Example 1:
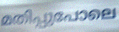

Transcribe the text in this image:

മതിപ്പുപോലെ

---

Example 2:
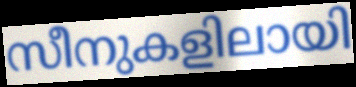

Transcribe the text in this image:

സീനുകളിലായി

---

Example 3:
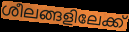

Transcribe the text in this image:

ശീലങ്ങളിലേക്ക്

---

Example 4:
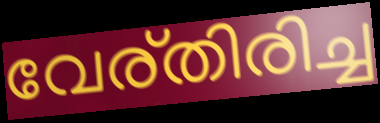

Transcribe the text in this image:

വേര്തിരിച്ച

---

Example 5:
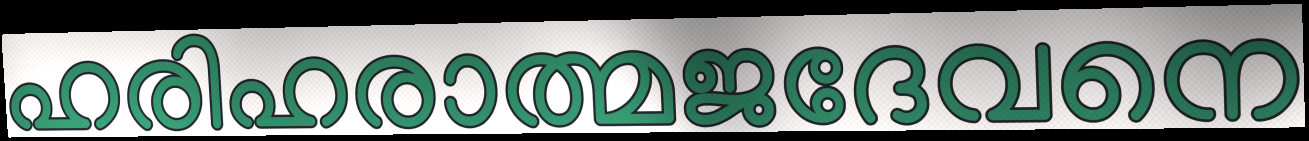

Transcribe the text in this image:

ഹരിഹരാത്മജദേവനെ